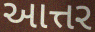
આત્તર